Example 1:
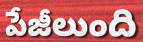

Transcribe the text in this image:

పేజీలుంది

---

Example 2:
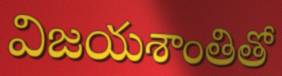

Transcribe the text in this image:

విజయశాంతితో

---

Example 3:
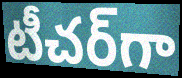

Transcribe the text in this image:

టీచర్‌గా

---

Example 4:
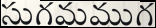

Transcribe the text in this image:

సుగమముగ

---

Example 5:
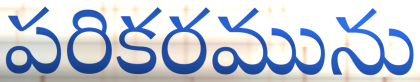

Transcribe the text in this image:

పరికరమును